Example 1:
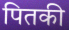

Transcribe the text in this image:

पितकी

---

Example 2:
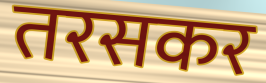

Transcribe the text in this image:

तरसकर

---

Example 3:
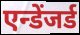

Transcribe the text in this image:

एन्डेंजर्ड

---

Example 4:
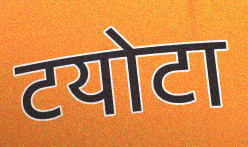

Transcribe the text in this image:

टयोटा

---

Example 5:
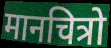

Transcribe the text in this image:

मानचित्रो